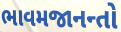
ભાવમજાનન્તો